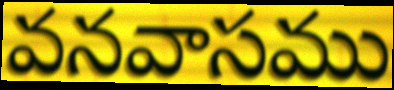
వనవాసము